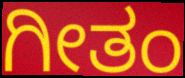
ಗೀತಂ